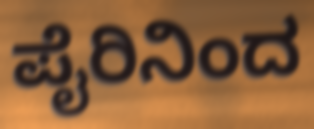
ಪೈರಿನಿಂದ